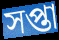
সপ্তা